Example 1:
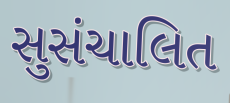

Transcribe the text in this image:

સુસંચાલિત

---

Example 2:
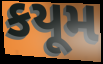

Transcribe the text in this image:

કયૂમ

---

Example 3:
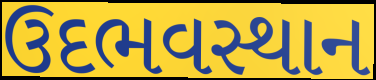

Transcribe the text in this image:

ઉદભવસ્થાન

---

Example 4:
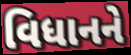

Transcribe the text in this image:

વિધાનને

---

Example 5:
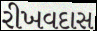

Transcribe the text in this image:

રીખવદાસ